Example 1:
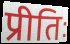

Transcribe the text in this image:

प्रीतिः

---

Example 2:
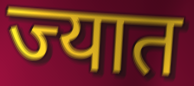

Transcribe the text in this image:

ज्यात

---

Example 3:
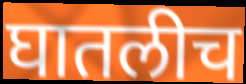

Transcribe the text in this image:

घातलीच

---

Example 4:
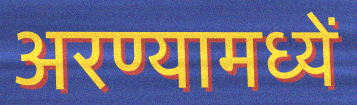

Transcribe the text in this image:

अरण्यामध्यें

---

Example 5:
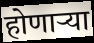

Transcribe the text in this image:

होणाऱ्या